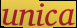
unica